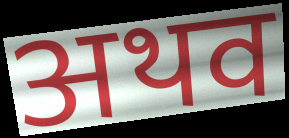
अथव